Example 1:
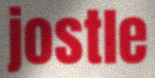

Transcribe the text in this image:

jostle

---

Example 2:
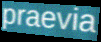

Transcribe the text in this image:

praevia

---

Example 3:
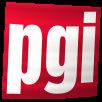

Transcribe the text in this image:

pgi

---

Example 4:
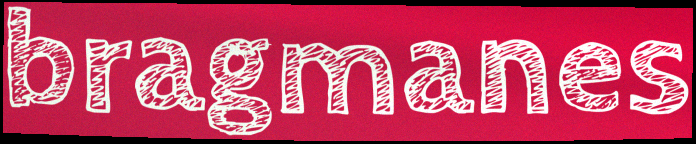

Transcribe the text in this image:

bragmanes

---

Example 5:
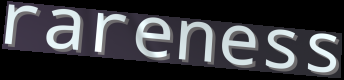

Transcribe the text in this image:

rareness